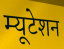
म्यूटेशन